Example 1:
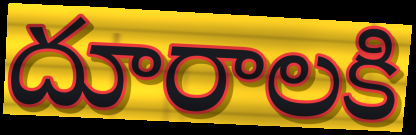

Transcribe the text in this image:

దూరాలకి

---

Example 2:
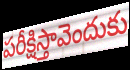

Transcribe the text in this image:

పరీక్షిస్తావెందుకు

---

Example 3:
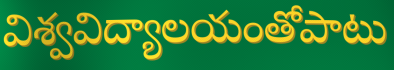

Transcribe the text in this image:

విశ్వవిద్యాలయంతోపాటు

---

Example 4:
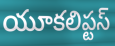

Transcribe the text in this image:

యూకలిప్టస్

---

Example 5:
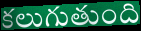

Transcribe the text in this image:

కలుగుతుంది